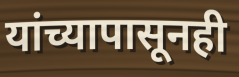
यांच्यापासूनही